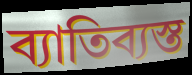
ব্যাতিব্যস্ত